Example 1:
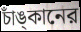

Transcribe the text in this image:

চাঁঙ্‌কানের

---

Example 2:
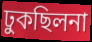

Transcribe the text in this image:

ঢুকছিলনা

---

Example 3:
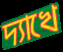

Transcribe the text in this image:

দ্যাখে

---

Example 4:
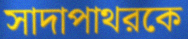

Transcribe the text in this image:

সাদাপাথরকে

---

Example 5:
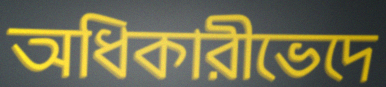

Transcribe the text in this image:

অধিকারীভেদে